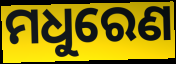
ମଧୁରେଣ